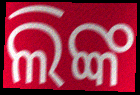
ଲିଙ୍କ